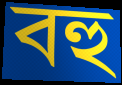
বহু